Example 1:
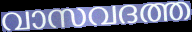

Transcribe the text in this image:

വാസവദത്ത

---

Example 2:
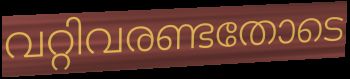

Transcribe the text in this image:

വറ്റിവരണ്ടതോടെ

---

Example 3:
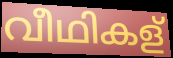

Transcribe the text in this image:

വീഥികള്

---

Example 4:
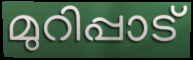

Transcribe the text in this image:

മുറിപ്പാട്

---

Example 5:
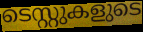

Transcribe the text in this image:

ടെസ്റ്റുകളുടെ